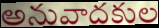
అనువాదకుల